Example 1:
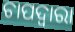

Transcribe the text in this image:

ଚାପଦ୍ବାରା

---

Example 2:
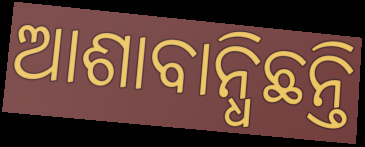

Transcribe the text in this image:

ଆଶାବାନ୍ଧିଛନ୍ତି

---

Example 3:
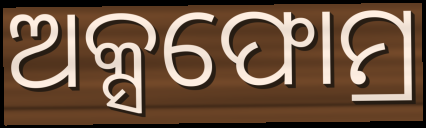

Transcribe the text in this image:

ଅକ୍ସଫୋମ୍ର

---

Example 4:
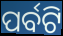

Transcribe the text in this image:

ପର୍ବଟି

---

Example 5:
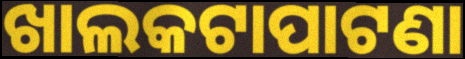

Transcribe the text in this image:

ଖାଲକଟାପାଟଣା